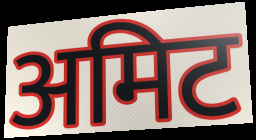
अमिट